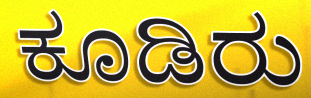
ಕೂಡಿರು